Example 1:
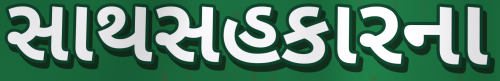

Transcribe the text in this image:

સાથસહકારના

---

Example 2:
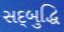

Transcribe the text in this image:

સદ્‌બુદ્ધિ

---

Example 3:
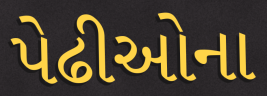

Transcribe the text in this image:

પેઢીઓના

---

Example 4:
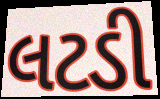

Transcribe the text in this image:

લટડી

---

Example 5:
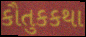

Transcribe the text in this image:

કૌતુકકથા